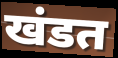
खंडत